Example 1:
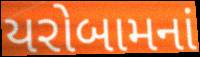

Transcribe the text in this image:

યરોબામનાં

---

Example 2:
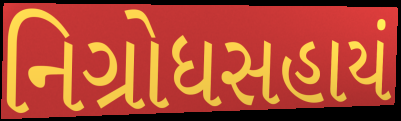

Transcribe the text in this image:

નિગ્રોધસહાયં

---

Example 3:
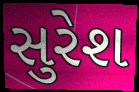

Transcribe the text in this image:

સુરેશ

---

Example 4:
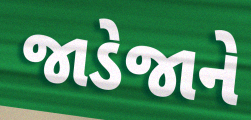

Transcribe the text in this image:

જાડેજાને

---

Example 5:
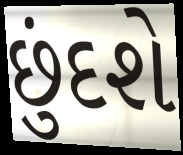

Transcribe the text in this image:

છુંદશે